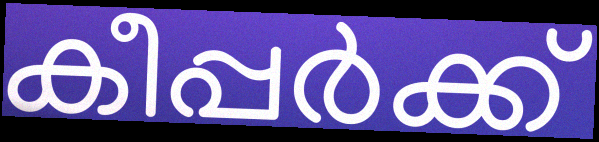
കീപ്പർക്ക്